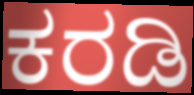
ಕರಡಿ